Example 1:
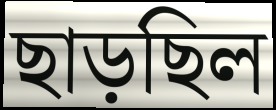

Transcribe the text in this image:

ছাড়ছিল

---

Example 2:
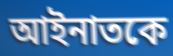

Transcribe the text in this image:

আইনাতকে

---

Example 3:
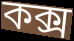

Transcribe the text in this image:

কক্স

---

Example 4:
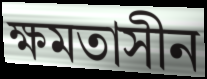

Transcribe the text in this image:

ক্ষমতাসীন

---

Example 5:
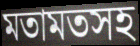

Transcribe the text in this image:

মতামতসহ